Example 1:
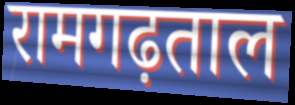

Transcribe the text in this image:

रामगढ़ताल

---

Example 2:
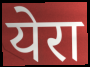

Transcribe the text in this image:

येरा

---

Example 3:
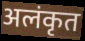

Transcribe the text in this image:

अलंकृत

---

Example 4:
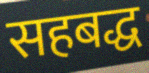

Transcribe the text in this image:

सहबद्ध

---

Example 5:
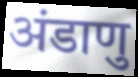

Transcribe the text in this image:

अंडाणु